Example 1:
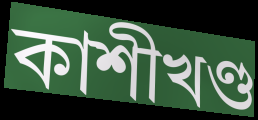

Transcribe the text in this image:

কাশীখণ্ড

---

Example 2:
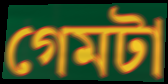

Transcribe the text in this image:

গেমটা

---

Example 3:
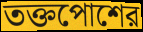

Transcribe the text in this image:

তক্তপোশের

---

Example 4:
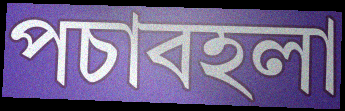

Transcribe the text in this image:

পচাবহলা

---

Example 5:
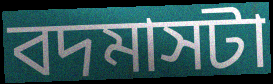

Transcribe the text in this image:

বদমাসটা